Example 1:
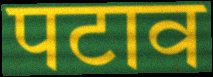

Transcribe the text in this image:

पटाव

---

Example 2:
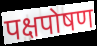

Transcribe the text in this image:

पक्षपोषण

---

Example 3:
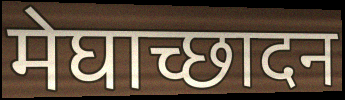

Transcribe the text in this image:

मेघाच्छादन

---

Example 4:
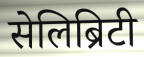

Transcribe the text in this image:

सेलिब्रिटी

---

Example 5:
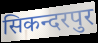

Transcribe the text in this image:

सिकन्दरपुर